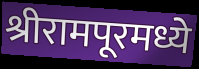
श्रीरामपूरमध्ये